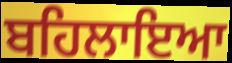
ਬਹਿਲਾਇਆ